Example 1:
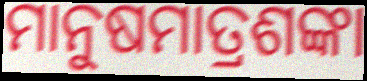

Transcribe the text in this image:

ମାନୁଷମାତ୍ରଶଙ୍କା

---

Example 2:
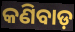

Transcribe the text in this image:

କଣିବାଡ଼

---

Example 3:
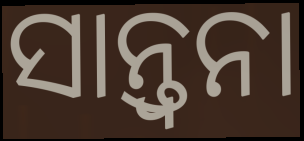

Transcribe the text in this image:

ସାନ୍ତ୍ଵନା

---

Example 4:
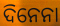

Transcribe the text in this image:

ଦିନେନା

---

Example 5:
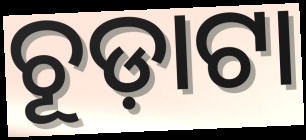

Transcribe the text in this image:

ଚୂଡ଼ାଟା